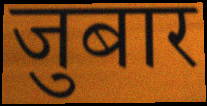
जुबार